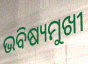
ଭବିଷ୍ୟମୁଖୀ